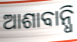
ଆଶାବାନ୍ଧି